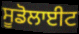
ਸੂਡੋਲਾਈਟ